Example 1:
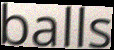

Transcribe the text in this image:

balls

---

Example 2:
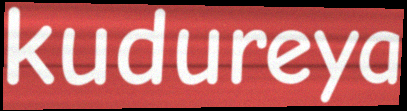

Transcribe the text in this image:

kudureya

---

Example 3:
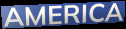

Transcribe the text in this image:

AMERICA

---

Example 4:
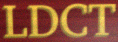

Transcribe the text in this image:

LDCT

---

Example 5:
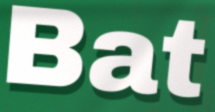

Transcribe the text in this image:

Bat